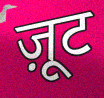
ज़ूट